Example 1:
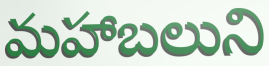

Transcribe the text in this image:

మహాబలుని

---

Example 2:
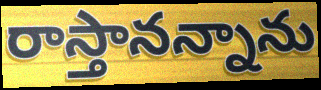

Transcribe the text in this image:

రాస్తానన్నాను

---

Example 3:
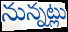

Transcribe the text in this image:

నున్నట్లు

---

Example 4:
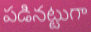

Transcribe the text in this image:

పడినట్టుగా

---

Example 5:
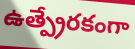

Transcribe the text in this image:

ఉత్ప్రేరకంగా